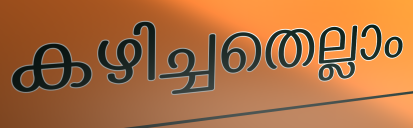
കഴിച്ചതെല്ലാം